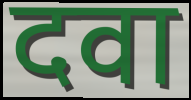
दवा